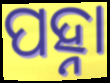
ପହ୍ନା